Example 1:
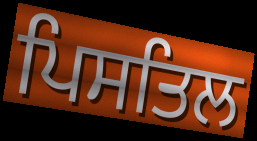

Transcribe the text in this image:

ਪਿਸਤਿਲ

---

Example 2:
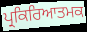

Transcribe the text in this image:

ਪ੍ਰਕਿਰਿਆਤਮਕ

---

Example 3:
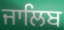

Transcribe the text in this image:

ਜਾਲਿਬ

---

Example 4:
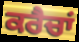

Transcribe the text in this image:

ਕਰੈਚਾਂ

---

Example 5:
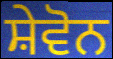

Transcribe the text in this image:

ਸ਼ੇਵੋਨ